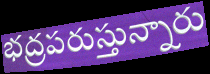
భద్రపరుస్తున్నారు